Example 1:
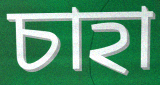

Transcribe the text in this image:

চাহা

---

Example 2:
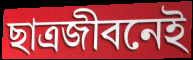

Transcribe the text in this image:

ছাত্রজীবনেই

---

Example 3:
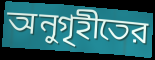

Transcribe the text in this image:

অনুগৃহীতের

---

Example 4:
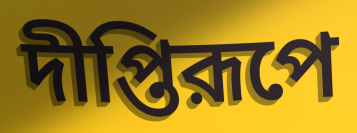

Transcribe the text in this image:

দীপ্তিরূপে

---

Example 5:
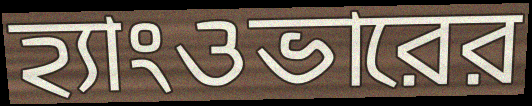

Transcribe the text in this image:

হ্যাংওভারের